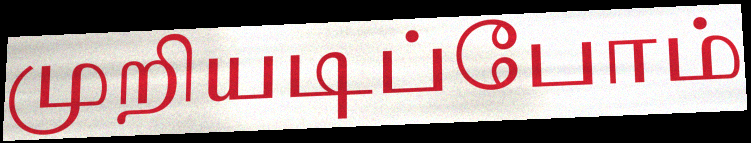
முறியடிப்போம்